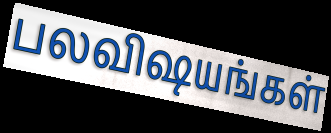
பலவிஷயங்கள்